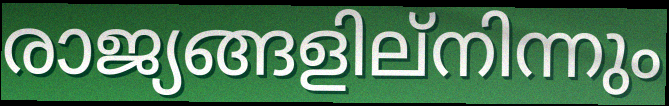
രാജ്യങ്ങളില്നിന്നും